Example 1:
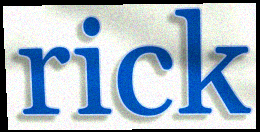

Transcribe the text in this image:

rick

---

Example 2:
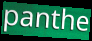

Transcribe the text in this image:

panthe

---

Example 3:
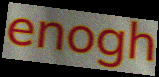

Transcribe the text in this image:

enogh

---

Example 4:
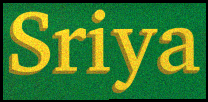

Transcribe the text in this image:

Sriya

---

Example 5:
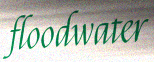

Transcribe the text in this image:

floodwater